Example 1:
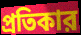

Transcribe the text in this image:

প্রতিকার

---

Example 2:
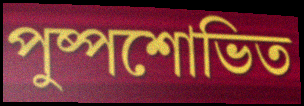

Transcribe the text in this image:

পুষ্পশোভিত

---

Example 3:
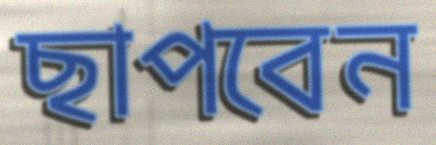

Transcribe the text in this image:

ছাপবেন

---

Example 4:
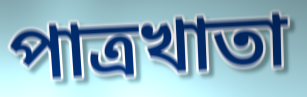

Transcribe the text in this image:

পাত্রখাতা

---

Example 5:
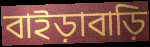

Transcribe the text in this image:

বাইড়াবাড়ি